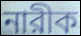
নারীক